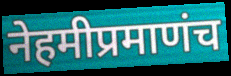
नेहमीप्रमाणंच